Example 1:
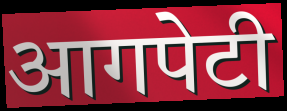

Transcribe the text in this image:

आगपेटी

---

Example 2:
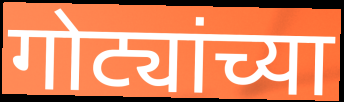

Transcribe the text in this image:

गोट्यांच्या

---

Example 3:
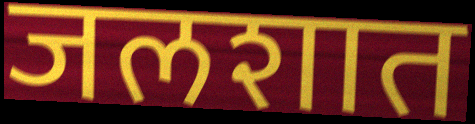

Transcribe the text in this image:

जलशात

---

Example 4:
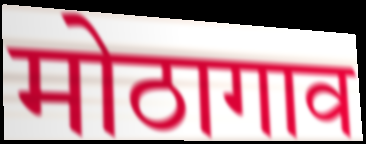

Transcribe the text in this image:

मोठागाव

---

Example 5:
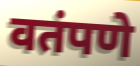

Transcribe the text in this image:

वतंपणे